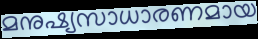
മനുഷ്യസാധാരണമായ